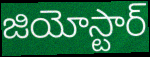
జియోస్టార్